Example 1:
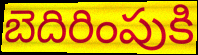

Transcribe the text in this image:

బెదిరింపుకి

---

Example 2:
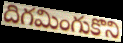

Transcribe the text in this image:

దిగమింగుకొని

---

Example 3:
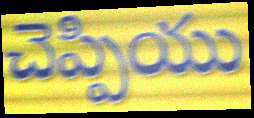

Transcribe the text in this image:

చెప్పియు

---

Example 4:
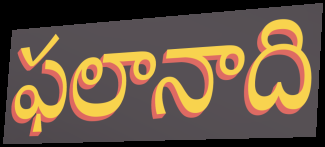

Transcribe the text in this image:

ఫలానాది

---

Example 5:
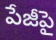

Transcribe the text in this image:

పేజీపై